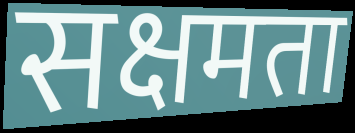
सक्षमता